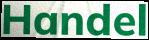
Handel